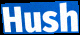
Hush